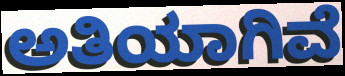
ಅತಿಯಾಗಿವೆ